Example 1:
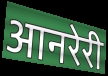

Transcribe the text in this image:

आनरेरी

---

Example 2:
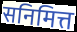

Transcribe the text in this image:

सनिमित्त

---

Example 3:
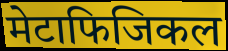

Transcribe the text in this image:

मेटाफिजिकल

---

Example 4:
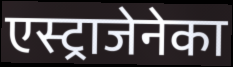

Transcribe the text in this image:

एस्ट्राजेनेका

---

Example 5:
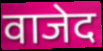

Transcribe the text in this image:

वाजेद